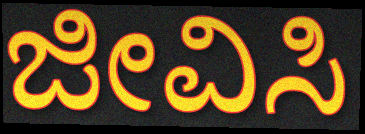
ಜೀವಿಸಿ